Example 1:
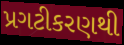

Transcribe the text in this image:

પ્રગટીકરણથી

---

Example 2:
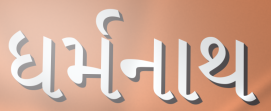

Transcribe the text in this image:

ધર્મનાથ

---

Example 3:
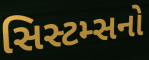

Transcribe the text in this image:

સિસ્ટમ્સનો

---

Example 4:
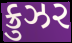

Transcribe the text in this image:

ક્રુઝર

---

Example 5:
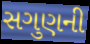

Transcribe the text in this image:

સગુણની